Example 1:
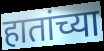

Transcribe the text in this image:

हातांच्या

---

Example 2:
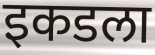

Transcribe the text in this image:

इकडला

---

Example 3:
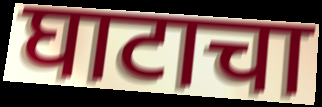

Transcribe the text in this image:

घाटाचा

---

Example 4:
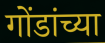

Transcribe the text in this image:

गोंडांच्या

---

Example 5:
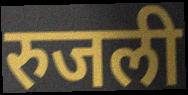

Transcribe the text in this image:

रुजली